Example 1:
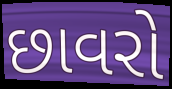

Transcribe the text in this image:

છાવરો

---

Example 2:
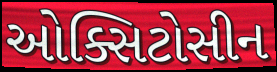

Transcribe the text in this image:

ઓક્સિટોસીન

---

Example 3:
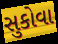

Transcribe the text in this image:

સુકોવા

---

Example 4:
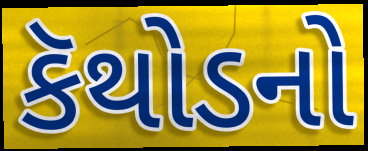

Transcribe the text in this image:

કૅથોડનો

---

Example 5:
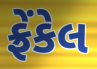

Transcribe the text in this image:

ફ્રેંકેલ